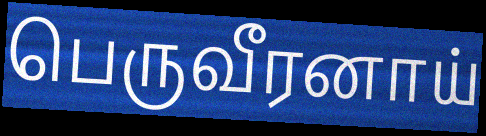
பெருவீரனாய்